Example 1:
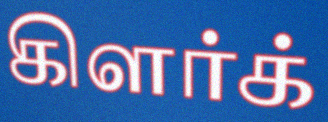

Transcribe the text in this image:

கிளர்க்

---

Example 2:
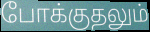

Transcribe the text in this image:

போக்குதலும்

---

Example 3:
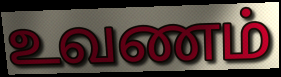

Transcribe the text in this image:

உவணம்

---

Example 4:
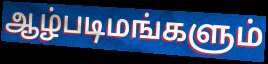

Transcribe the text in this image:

ஆழ்படிமங்களும்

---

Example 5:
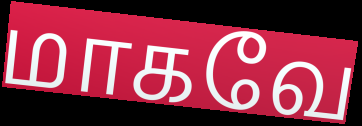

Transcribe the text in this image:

மாகவே